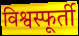
विश्वस्फूर्ती